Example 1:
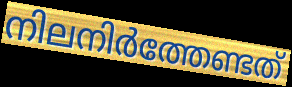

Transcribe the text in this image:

നിലനിർത്തേണ്ടത്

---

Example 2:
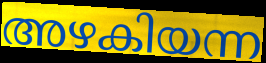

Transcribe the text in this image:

അഴകിയന്ന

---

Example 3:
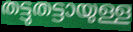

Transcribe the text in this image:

തട്ടുതട്ടായുള്ള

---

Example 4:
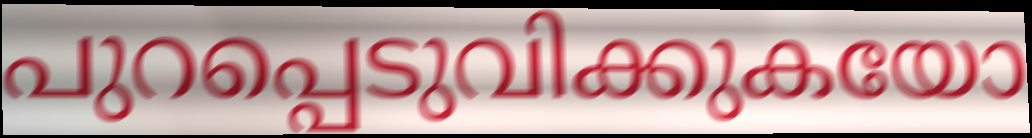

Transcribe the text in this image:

പുറപ്പെടുവിക്കുകയോ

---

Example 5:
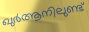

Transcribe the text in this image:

ഖുർആനിലുണ്ട്